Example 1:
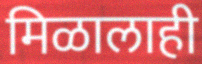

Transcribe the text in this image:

मिळालाही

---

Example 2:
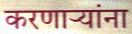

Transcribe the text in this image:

करणार्‍यांना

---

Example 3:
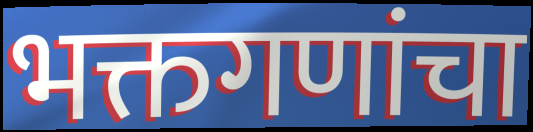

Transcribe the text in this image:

भक्तगणांचा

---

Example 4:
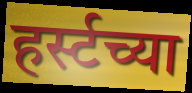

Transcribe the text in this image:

हर्स्टच्या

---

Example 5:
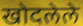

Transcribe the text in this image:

खोदलेले